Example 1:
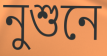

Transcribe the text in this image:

নুশুনে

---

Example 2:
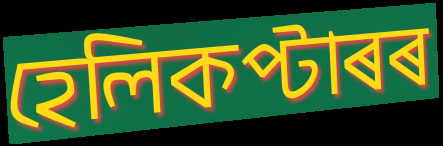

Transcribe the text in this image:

হেলিকপ্টাৰৰ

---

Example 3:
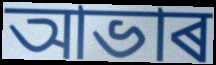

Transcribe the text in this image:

আভাৰ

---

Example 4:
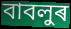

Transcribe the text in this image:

বাবলুৰ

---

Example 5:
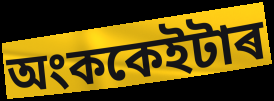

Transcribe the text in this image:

অংককেইটাৰ